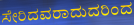
ಸೇರಿದವರಾದುದರಿಂದ